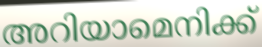
അറിയാമെനിക്ക്